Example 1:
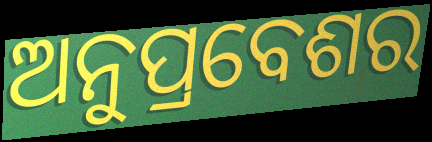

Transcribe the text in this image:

ଅନୁପ୍ରବେଶର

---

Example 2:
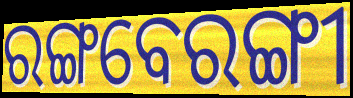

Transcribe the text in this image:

ରଙ୍ଗବେରଙ୍ଗୀ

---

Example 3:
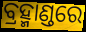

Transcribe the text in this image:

ବ୍ରହ୍ମାଣ୍ଡରେ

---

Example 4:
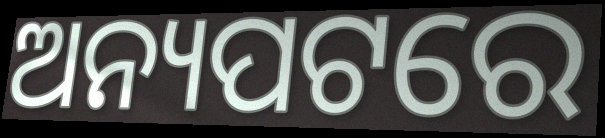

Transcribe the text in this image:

ଅନ୍ୟପଟରେ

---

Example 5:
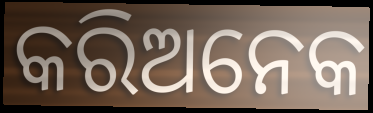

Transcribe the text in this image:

କରିଅନେକ